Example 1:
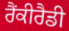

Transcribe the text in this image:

ਰੈਂਕੀਰੈਡੀ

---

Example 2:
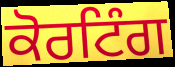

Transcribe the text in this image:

ਕੋਰਟਿੰਗ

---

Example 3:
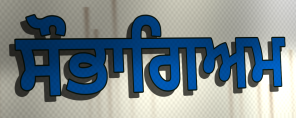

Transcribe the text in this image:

ਸੌਭਾਗਿਅਮ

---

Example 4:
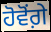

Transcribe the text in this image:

ਹੋਵੋਂਗ਼ੇ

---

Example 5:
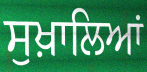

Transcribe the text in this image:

ਸੁਖ਼ਾਲਿਆਂ